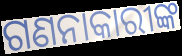
ଗଣନାକାରୀଙ୍କ